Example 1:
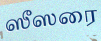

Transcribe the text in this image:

ஸீஸரை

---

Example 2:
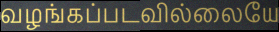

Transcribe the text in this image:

வழங்கப்படவில்லையே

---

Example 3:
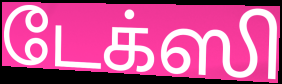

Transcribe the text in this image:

டேக்ஸி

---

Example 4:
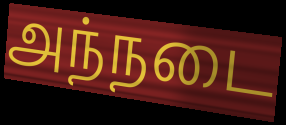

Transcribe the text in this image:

அந்நடை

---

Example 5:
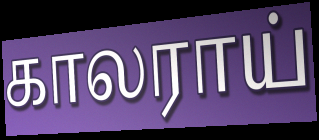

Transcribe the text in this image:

காலராய்